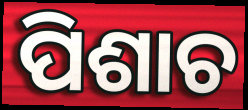
ପିଶାଚ